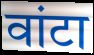
वांटा